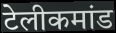
टेलीकमांड